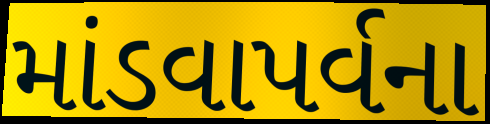
માંડવાપર્વના